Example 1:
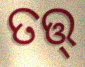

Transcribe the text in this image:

ତତ୍ତ୍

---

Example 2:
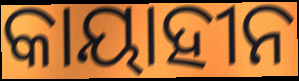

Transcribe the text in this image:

କାୟାହୀନ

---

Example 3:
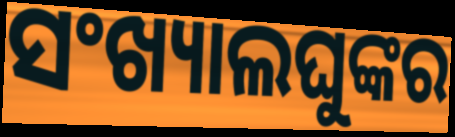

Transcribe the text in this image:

ସଂଖ୍ୟାଲଘୁଙ୍କର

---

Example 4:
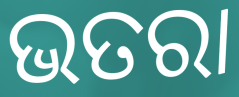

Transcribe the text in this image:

ଭତରା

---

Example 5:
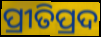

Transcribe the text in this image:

ପ୍ରୀତିପ୍ରଦ